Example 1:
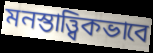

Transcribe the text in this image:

মনস্তাত্ত্বিকভাবে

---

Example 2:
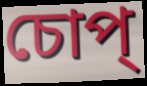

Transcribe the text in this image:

চোপ্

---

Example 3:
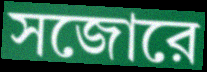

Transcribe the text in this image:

সজোরে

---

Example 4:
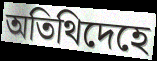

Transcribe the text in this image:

অতিথিদেহে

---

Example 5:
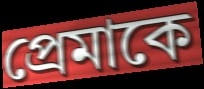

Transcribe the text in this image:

প্রেমাকে